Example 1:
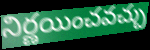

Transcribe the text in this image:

నిర్ణయించవచ్చు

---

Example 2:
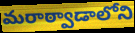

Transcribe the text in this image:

మరాఠ్వాడాలోని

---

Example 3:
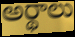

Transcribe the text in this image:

అర్థాలు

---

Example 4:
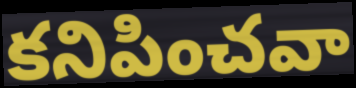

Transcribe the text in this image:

కనిపించవా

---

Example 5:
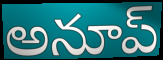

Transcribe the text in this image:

అనూప్